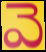
వె